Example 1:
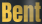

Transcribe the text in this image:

Bent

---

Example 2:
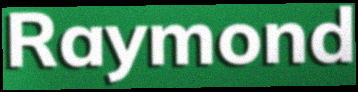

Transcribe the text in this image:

Raymond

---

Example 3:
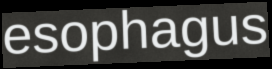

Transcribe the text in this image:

esophagus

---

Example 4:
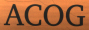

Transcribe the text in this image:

ACOG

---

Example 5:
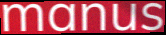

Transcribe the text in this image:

manus